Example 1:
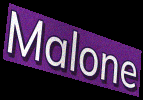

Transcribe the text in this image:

Malone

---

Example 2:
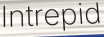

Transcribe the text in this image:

Intrepid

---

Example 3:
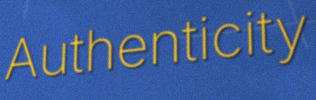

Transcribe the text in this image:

Authenticity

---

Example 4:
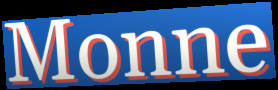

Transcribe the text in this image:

Monne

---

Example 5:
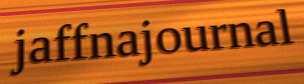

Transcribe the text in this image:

jaffnajournal